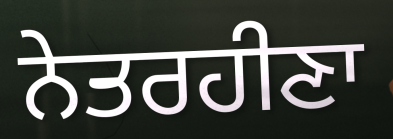
ਨੇਤਰਹੀਣਾ